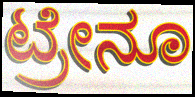
ಟ್ರೇನೂ